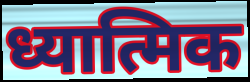
ध्यात्मिक